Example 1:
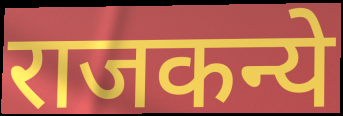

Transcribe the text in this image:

राजकन्ये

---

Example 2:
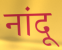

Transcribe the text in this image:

नांदू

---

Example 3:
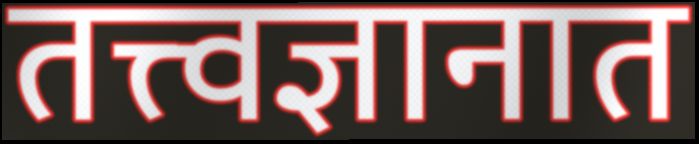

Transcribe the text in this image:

तत्त्वज्ञानात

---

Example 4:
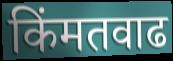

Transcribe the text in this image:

किंमतवाढ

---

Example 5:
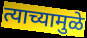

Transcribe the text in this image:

त्याच्यामुळे